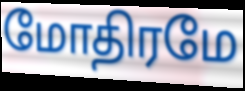
மோதிரமே